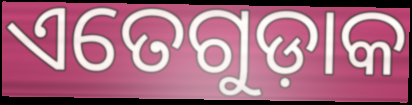
ଏତେଗୁଡ଼ାକ